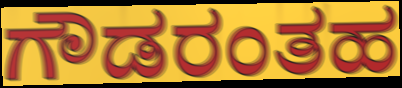
ಗೌಡರಂತಹ